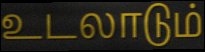
உடலாடும்